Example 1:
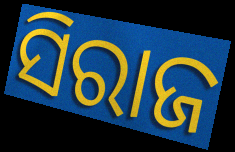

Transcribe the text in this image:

ସିରାଜ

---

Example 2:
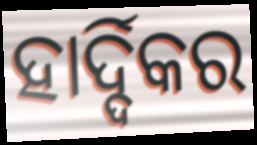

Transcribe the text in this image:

ହାର୍ଦ୍ଦିକର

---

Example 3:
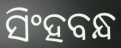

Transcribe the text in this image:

ସିଂହବନ୍ଧ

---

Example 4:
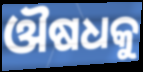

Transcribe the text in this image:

ଔଷଧକୁ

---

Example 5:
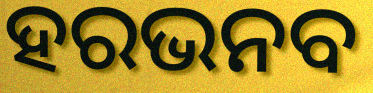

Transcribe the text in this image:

ହରଭନବ